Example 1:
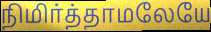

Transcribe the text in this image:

நிமிர்த்தாமலேயே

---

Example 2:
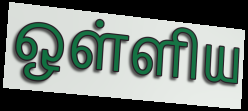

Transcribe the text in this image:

ஒள்ளிய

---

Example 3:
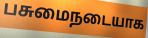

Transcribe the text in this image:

பசுமைநடையாக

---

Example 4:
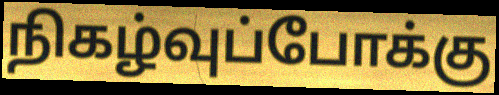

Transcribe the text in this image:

நிகழ்வுப்போக்கு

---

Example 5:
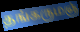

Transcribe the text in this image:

தங்கருமஞ்